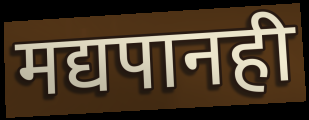
मद्यपानही